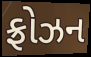
ફ્રોઝન